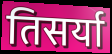
तिसर्या